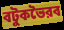
বটুকভৈরব